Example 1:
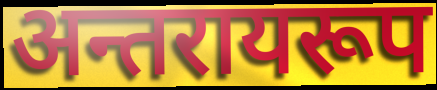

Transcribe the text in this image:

अन्तरायरूप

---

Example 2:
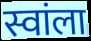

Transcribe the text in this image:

स्वांला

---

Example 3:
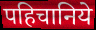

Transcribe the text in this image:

पहिचानिये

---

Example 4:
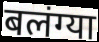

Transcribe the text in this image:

बलंग्या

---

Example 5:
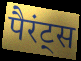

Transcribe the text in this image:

पैरंट्स